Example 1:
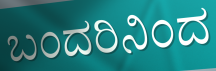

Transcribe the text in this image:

ಬಂದರಿನಿಂದ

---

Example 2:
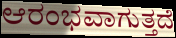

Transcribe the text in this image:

ಆರಂಭವಾಗುತ್ತದೆ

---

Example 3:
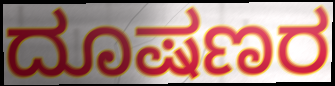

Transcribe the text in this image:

ದೂಷಣರ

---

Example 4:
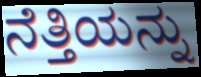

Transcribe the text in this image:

ನೆತ್ತಿಯನ್ನು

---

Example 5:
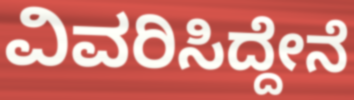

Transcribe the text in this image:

ವಿವರಿಸಿದ್ದೇನೆ